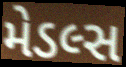
મેડલ્સ